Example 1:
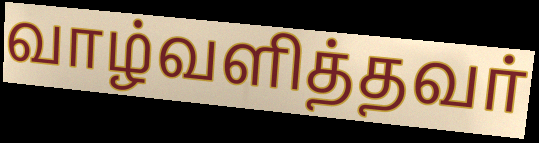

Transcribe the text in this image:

வாழ்வளித்தவர்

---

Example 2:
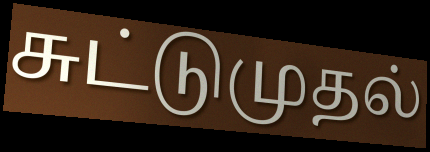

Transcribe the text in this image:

சுட்டுமுதல்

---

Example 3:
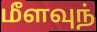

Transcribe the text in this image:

மீளவுந்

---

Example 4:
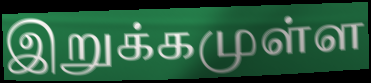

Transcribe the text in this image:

இறுக்கமுள்ள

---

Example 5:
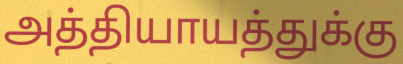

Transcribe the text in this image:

அத்தியாயத்துக்கு